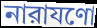
নারাযণো